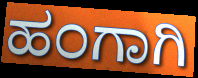
ಹಂಗಾಗಿ